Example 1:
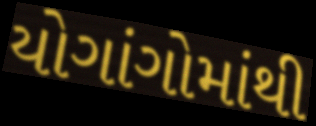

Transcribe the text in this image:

યોગાંગોમાંથી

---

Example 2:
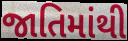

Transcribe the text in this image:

જાતિમાંથી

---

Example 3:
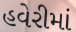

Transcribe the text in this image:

હવેરીમાં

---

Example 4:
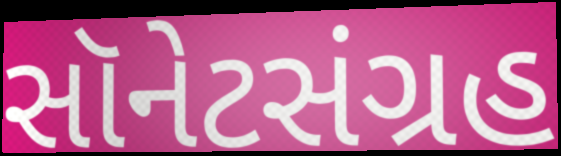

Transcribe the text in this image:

સૉનેટસંગ્રહ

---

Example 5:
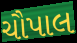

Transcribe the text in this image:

ચૌપાલ